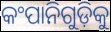
କଂପାନିଗୁଡ଼ିକୁ